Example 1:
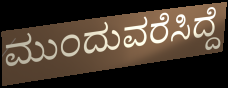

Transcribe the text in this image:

ಮುಂದುವರೆಸಿದ್ದೆ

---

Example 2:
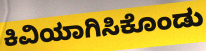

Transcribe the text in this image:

ಕಿವಿಯಾಗಿಸಿಕೊಂಡು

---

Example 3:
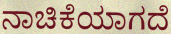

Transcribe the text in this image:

ನಾಚಿಕೆಯಾಗದೆ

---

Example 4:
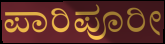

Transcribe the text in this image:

ಪಾರಿಪೂರೀ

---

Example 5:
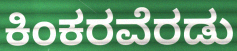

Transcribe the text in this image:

ಕಿಂಕರವೆರಡು